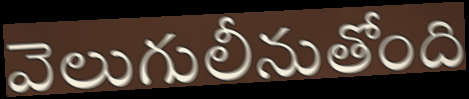
వెలుగులీనుతోంది